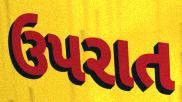
ઉપરાત